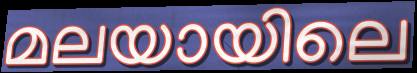
മലയായിലെ